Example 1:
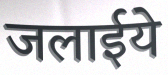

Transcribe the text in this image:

जलाईये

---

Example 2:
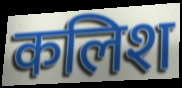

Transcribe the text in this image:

कलिश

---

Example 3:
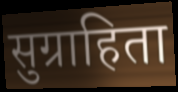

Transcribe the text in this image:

सुग्राहिता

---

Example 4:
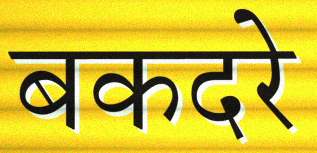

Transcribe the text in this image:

बकदरे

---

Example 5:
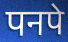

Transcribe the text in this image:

पनपे